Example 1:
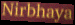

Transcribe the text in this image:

Nirbhaya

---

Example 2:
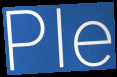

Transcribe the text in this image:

Ple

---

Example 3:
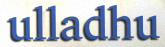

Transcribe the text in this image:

ulladhu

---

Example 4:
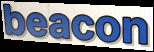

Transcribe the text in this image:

beacon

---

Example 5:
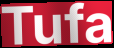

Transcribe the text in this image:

Tufa